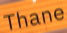
Thane